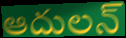
ఆదులన్